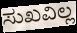
ಸುಖವಿಲ್ಲ